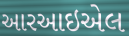
આરઆઇએલ